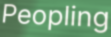
Peopling